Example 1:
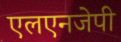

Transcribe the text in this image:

एलएनजेपी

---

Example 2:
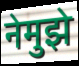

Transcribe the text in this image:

नेमुझे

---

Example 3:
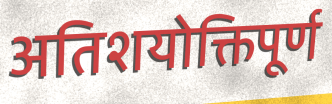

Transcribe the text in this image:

अतिशयोक्तिपूर्ण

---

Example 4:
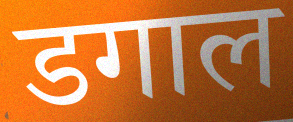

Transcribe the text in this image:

डगाल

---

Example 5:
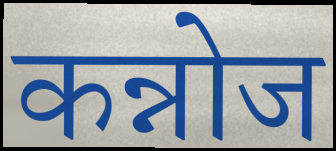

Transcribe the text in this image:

कन्नोज